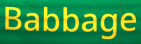
Babbage